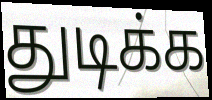
துடிக்க